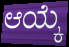
ಆಯ್ಕೆ